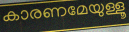
കാരണമേയുള്ളൂ